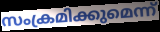
സംക്രമിക്കുമെന്ന്